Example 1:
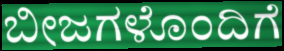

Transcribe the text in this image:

ಬೀಜಗಳೊಂದಿಗೆ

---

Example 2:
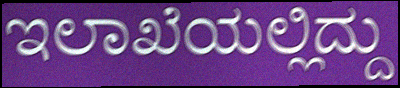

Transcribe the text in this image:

ಇಲಾಖೆಯಲ್ಲಿದ್ದು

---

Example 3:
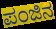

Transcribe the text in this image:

ಪಂಜಿನ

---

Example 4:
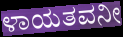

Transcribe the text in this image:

ಳಾಯತವನೀ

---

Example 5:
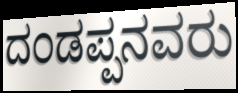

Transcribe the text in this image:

ದಂಡಪ್ಪನವರು